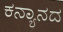
ಕನ್ಯಾನದ